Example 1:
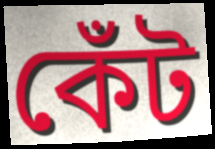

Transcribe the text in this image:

কেঁট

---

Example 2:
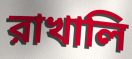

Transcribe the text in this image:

রাখালি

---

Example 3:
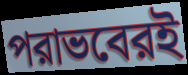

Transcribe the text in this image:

পরাভবেরই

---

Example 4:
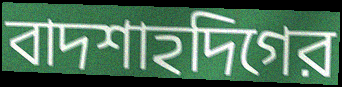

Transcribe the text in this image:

বাদশাহদিগের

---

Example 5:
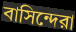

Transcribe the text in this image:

বাসিন্দেরা